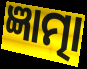
ଜ୍ଞାତ୍ମା